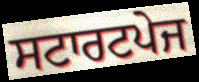
ਸਟਾਰਟਪੇਜ